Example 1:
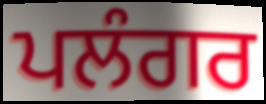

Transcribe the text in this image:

ਪਲੰਗਰ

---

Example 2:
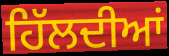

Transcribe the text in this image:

ਹਿੱਲਦੀਆਂ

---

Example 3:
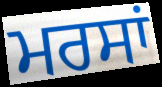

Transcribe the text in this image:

ਮਰਸਾਂ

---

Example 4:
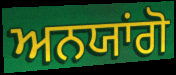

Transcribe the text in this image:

ਅਨਯਾਂਗੋ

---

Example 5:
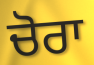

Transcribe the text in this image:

ਚੋਰਾ